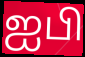
ஐபி